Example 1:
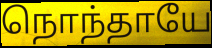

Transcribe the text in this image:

நொந்தாயே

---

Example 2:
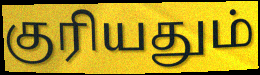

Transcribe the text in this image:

குரியதும்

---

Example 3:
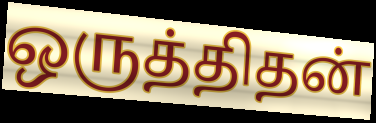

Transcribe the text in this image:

ஒருத்திதன்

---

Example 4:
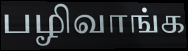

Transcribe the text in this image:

பழிவாங்க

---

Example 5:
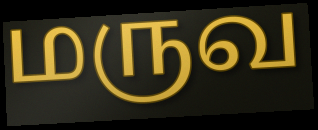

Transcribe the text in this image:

மருவ